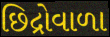
છિદ્રોવાળા